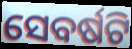
ସେବର୍ଷଟି